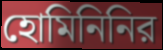
হোমিনিনির